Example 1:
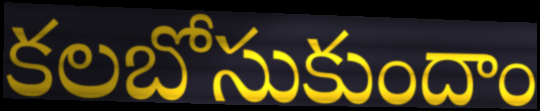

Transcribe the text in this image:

కలబోసుకుందాం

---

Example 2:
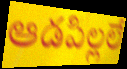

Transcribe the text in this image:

ఆడపిల్లలే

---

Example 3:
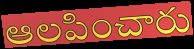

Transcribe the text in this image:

ఆలపించారు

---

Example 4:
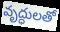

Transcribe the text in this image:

వృద్ధులతో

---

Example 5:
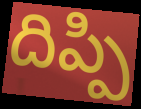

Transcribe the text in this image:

దిప్పి